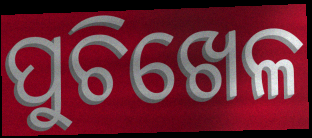
ପୁଚିଖେଳ